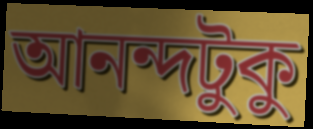
আনন্দটুকু